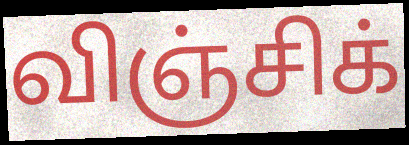
விஞ்சிக்